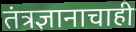
तंत्रज्ञानाचाही